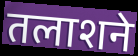
तलाशने